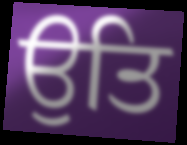
ਉਤਿ